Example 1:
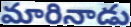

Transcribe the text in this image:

మారినాడు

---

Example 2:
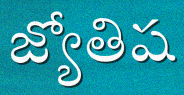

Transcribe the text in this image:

జ్యోతిష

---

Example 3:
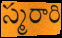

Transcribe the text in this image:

స్మరారి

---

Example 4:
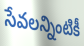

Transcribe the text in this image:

సేవలన్నింటికీ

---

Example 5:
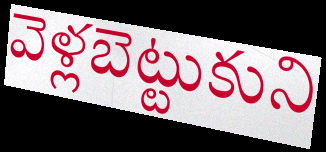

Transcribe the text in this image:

వెళ్లబెట్టుకుని